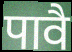
पावै